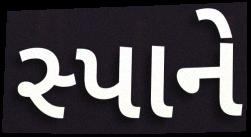
સ્પાને